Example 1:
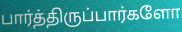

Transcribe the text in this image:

பார்த்திருப்பார்களோ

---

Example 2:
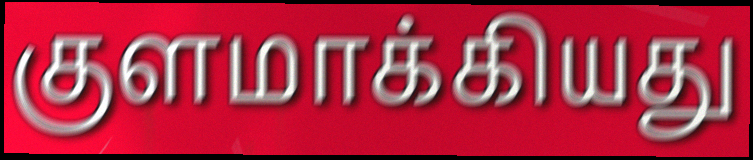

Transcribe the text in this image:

குளமாக்கியது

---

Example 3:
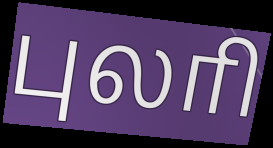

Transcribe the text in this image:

புலரி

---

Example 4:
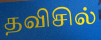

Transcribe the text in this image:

தவிசில்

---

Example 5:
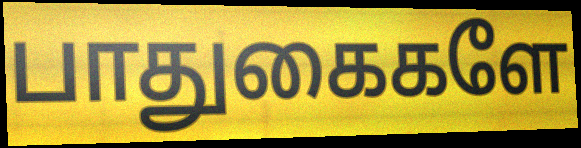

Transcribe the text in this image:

பாதுகைகளே